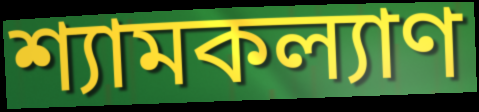
শ্যামকল্যাণ